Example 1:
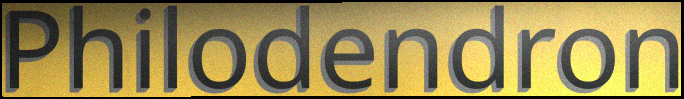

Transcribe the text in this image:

Philodendron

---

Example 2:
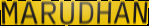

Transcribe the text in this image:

MARUDHAN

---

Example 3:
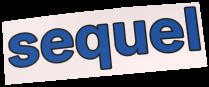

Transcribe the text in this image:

sequel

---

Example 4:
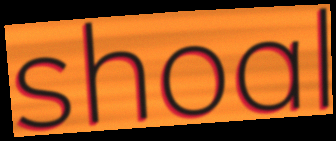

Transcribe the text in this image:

shoal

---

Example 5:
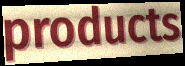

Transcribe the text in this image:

products